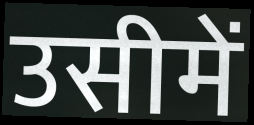
उसीमें